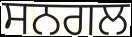
ਸਨਗਲ